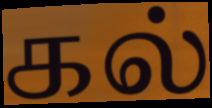
கல்